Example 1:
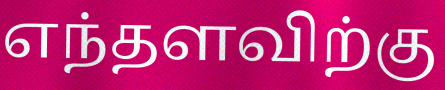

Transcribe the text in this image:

எந்தளவிற்கு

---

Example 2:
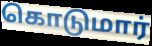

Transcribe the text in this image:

கொடுமார்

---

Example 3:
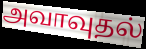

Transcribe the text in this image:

அவாவுதல்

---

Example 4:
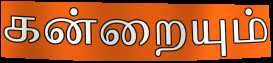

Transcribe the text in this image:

கன்றையும்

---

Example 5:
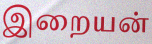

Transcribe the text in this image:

இறையன்